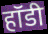
हॉडी